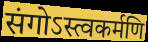
संगोऽस्त्वकर्मणि